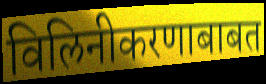
विलिनीकरणाबाबत